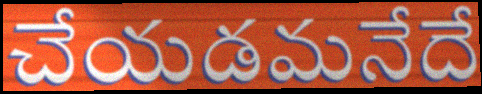
చేయడమనేదే